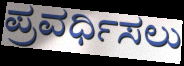
ಪ್ರವರ್ಧಿಸಲು